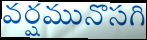
వర్షమునొసగి